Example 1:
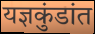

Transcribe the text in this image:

यज्ञकुंडांत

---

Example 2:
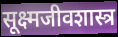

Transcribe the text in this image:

सूक्ष्मजीवशास्त्र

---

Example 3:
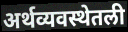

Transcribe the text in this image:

अर्थव्यवस्थेतली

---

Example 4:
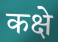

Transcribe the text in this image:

कक्षे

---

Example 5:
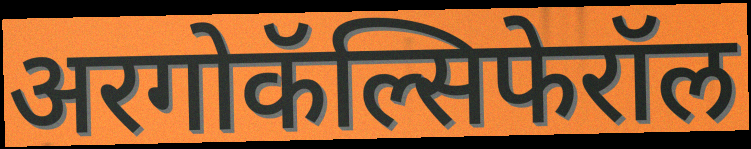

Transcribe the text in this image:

अरगोकॅल्सिफेरॉल